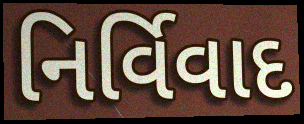
નિર્વિવાદ